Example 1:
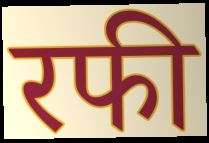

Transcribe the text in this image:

रफी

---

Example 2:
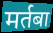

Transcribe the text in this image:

मर्तबा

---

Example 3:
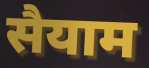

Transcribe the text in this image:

सैयाम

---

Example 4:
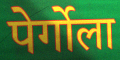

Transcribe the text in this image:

पेर्गोला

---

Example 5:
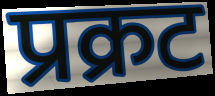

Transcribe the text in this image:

प्रक्रट